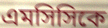
এমসিসিকে